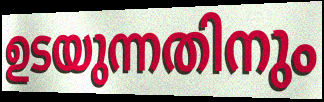
ഉടയുന്നതിനും